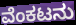
ವೆಂಕಟನು